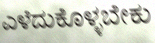
ಎಳೆದುಕೊಳ್ಳಬೇಕು